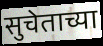
सुचेताच्या